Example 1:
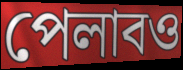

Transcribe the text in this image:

পেলাবও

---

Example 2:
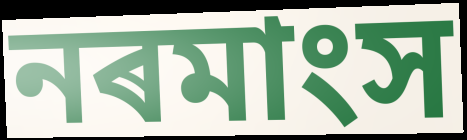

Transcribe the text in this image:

নৰমাংস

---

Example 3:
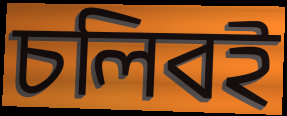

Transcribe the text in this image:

চলিবই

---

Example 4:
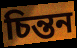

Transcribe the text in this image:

চিন্তন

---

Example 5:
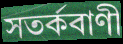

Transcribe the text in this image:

সতৰ্কবাণী